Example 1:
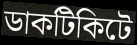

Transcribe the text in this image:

ডাকটিকিটে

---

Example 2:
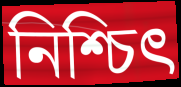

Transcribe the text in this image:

নিশ্চিৎ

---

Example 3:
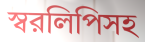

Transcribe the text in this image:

স্বরলিপিসহ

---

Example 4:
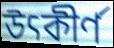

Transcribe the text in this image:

উৎকীর্ণ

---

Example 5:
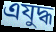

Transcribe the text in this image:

এযুদ্ধ